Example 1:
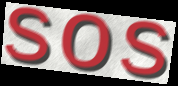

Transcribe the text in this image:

sos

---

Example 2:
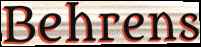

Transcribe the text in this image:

Behrens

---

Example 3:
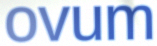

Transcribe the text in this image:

ovum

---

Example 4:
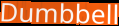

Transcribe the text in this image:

Dumbbell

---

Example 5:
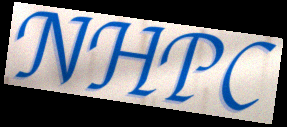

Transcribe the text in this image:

NHPC